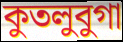
কুতলুবুগা